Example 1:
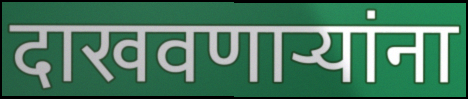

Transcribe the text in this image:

दाखवणाऱ्यांना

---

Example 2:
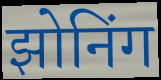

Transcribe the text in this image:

झोनिंग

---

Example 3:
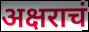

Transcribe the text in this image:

अक्षराचं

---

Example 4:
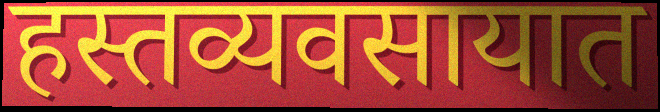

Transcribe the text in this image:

हस्तव्यवसायात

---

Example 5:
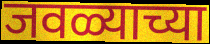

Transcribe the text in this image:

जवळ्याच्या